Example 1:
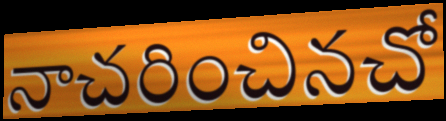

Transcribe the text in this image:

నాచరించినచో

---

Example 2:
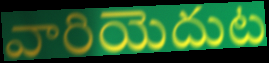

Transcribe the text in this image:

వారియెదుట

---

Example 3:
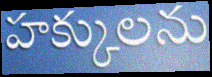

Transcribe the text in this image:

హక్కులను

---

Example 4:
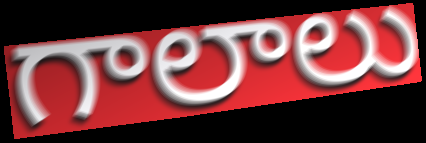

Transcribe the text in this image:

గాలాలు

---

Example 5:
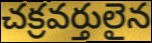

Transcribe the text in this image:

చక్రవర్తులైన